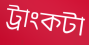
ট্রাংকটা